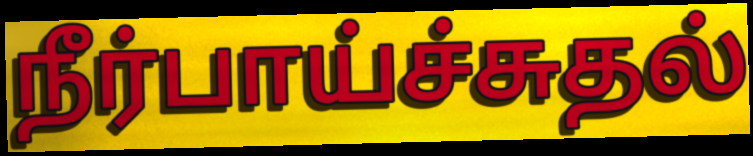
நீர்பாய்ச்சுதல்